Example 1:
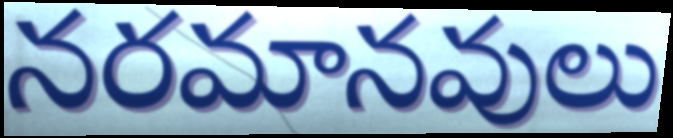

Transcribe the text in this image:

నరమానవులు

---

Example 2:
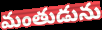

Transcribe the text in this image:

మంతుడును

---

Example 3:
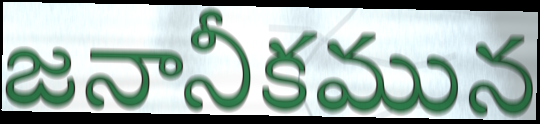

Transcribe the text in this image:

జనానీకమున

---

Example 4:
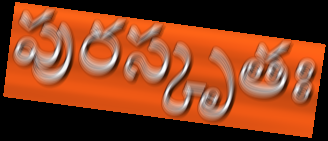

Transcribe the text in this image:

పురస్కృతః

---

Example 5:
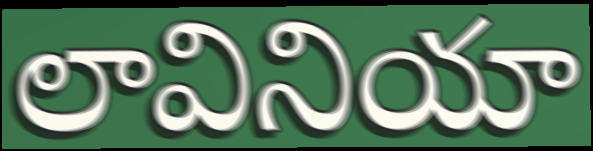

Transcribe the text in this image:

లావినియా